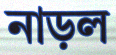
নাড়ল